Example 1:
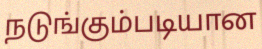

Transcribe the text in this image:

நடுங்கும்படியான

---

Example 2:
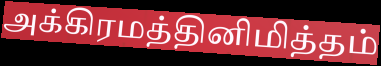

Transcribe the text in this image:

அக்கிரமத்தினிமித்தம்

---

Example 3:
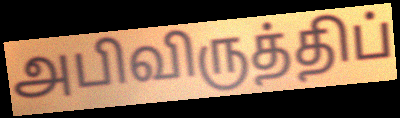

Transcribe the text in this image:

அபிவிருத்திப்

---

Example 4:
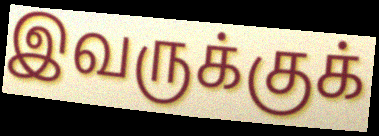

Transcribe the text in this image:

இவருக்குக்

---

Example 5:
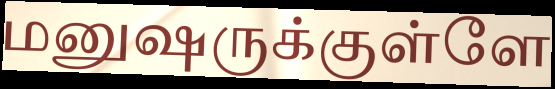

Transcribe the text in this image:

மனுஷருக்குள்ளே